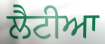
ਲੈਟੀਆ